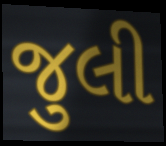
જુલી